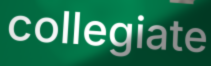
collegiate